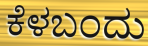
ಕೆಳಬಂದು